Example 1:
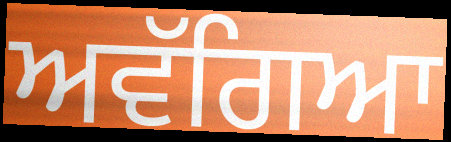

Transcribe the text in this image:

ਅਵੱਗਿਆ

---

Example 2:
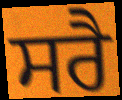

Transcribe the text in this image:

ਸਰੈ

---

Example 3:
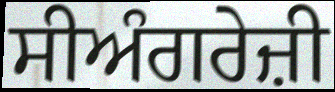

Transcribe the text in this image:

ਸੀਅੰਗਰੇਜ਼ੀ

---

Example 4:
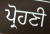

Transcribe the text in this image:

ਪ੍ਰੋਹਣੀ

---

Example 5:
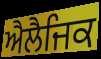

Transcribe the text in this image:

ਐਲੈਜਿਕ